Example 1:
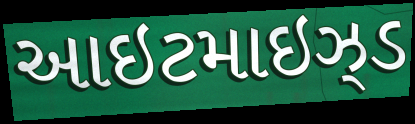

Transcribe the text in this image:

આઇટમાઇઝ્ડ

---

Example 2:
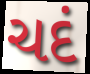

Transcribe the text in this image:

ચદં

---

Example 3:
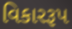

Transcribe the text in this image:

વિકારરૂપ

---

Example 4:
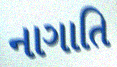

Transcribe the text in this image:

નાગાતિ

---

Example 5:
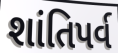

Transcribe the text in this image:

શાંતિપર્વ